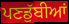
ਪਣਡੁੱਬੀਆਂ